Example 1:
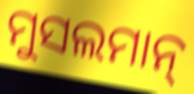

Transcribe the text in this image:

ମୁସଲମାନ୍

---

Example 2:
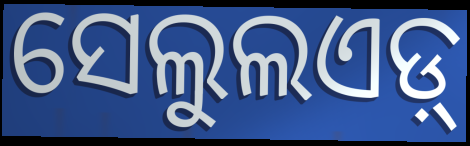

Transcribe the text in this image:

ସେଲୁଲଏଡ଼୍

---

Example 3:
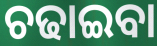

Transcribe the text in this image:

ଚଢାଇବା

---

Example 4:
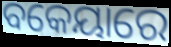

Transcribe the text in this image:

ବକେୟାରେ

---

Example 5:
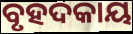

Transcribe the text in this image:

ବୃହଦକାୟ